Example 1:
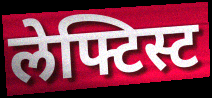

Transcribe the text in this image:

लेफ्टिस्ट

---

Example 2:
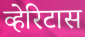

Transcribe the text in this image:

व्हेरिटास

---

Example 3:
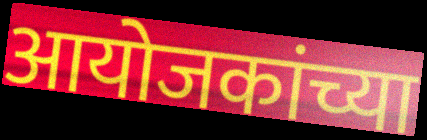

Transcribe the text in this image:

आयोजकांच्या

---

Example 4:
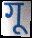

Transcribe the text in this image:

गू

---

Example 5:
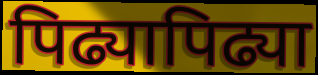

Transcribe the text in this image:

पिढ्यापिढ्या